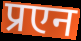
प्रएन